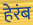
हेरंब